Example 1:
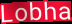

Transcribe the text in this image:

Lobha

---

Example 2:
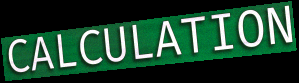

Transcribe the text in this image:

CALCULATION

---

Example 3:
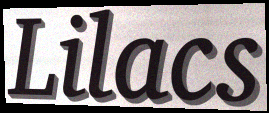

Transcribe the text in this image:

Lilacs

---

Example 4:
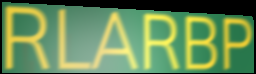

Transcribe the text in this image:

RLARBP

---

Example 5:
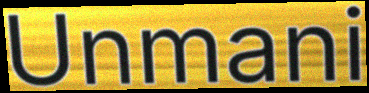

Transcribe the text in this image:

Unmani